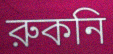
রুকনি